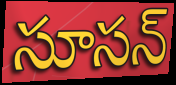
సూసన్